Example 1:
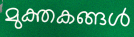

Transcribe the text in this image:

മുക്തകങ്ങൾ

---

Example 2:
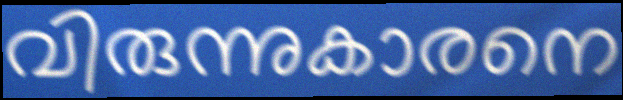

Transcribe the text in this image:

വിരുന്നുകാരനെ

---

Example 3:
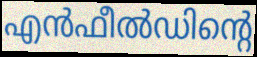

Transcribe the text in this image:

എൻഫീൽഡിന്റെ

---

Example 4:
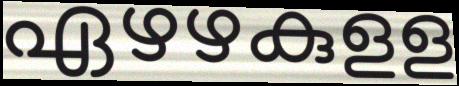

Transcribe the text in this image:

ഏഴഴകുളള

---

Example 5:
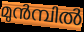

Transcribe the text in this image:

മുൻമ്പിൽ